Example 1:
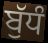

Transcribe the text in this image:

ਬੁੱਧੰ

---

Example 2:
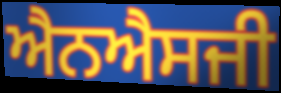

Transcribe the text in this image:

ਐਨਐਸਜੀ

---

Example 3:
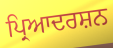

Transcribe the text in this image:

ਪ੍ਰਿਆਦਰਸ਼ਨ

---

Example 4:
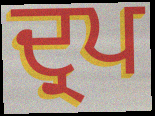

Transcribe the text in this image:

ਦ੍ਰਪ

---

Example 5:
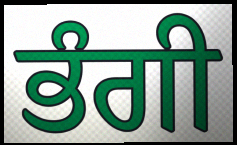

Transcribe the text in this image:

ਭੰਗੀ